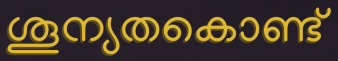
ശൂന്യതകൊണ്ട്